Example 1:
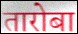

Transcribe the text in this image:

तारोबा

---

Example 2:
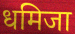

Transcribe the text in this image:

धमिजा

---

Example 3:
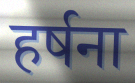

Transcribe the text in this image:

हर्षना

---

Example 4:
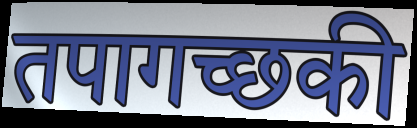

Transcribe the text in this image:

तपागच्छकी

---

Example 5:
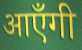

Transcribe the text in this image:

आएँगी